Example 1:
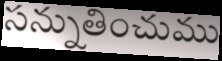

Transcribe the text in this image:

సన్నుతించుము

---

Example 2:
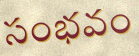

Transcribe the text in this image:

సంభవం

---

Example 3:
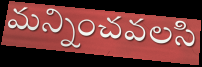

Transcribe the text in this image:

మన్నించవలసి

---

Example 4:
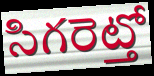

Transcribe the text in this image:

సిగరెట్తో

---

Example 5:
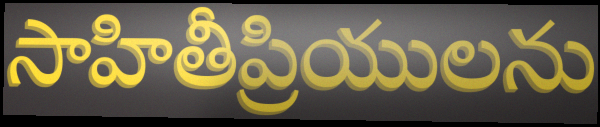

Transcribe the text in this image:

సాహితీప్రియులను